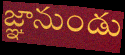
జ్ఞానుండు